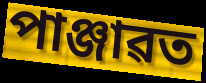
পাঞ্জাৱত